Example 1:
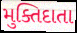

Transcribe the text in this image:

મુક્તિદાતા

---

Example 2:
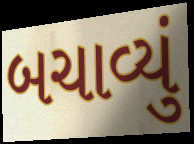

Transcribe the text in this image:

બચાવ્યું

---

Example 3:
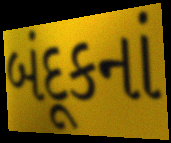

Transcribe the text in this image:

બંદૂકનાં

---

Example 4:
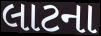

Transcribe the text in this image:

લાટના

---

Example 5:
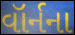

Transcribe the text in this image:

વૉર્નના